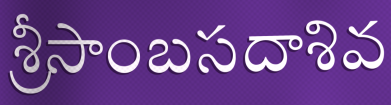
శ్రీసాంబసదాశివ